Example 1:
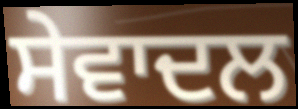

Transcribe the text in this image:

ਸੇਵਾਦਲ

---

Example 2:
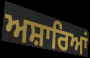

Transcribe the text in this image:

ਅਸ਼ਾਰਿਆਂ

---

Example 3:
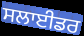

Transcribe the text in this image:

ਸਲਾਈਡਰ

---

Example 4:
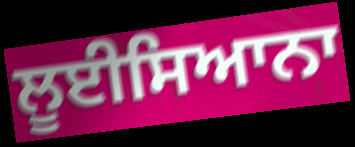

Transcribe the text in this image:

ਲੂਈਸਿਆਨਾ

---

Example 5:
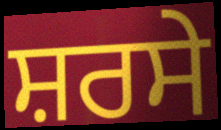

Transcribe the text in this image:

ਸ਼ਰਸੇ